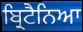
ਬ੍ਰਿਟੈਨਿਆ